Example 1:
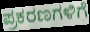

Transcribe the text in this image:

ಪ್ರಕರಣಗಳಿಗೆ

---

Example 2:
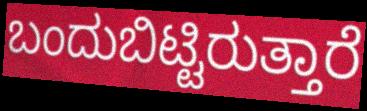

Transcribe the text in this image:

ಬಂದುಬಿಟ್ಟಿರುತ್ತಾರೆ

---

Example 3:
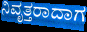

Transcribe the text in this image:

ನಿವೃತ್ತರಾದಾಗ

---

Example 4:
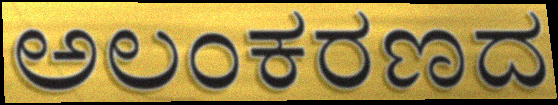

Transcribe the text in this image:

ಅಲಂಕರಣದ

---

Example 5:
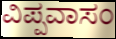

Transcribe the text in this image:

ವಿಪ್ಪವಾಸಂ